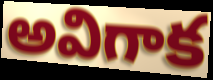
అవిగాక